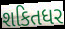
શકિતધર